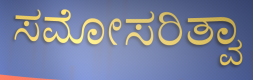
ಸಮೋಸರಿತ್ವಾ